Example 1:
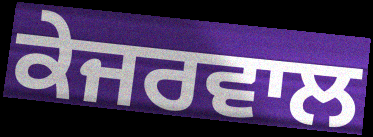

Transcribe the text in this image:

ਕੇਜਰਵਾਲ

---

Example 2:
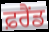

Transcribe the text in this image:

ਫ਼ਰੈਂਡ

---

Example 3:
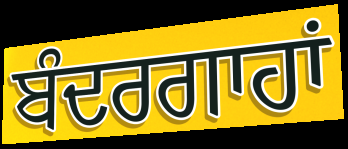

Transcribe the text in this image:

ਬੰਦਰਗਾਹਾਂ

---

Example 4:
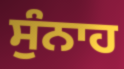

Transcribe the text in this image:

ਸੁੰਨਾਹ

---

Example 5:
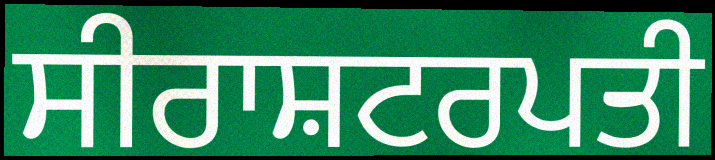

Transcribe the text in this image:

ਸੀਰਾਸ਼ਟਰਪਤੀ